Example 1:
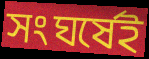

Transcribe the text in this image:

সংঘর্ষেই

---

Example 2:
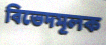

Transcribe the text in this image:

বিভেদমূলক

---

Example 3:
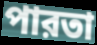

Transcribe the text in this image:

পারতা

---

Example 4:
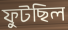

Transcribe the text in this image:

ফুটছিল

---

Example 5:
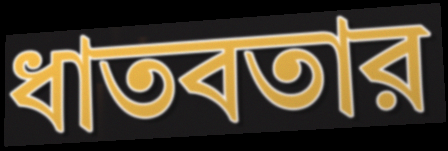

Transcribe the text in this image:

ধাতবতার